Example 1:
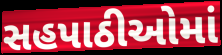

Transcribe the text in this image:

સહપાઠીઓમાં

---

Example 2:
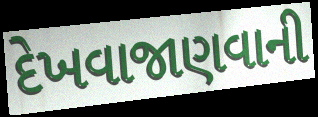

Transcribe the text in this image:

દેખવાજાણવાની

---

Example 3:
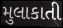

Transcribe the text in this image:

મુલાકાતી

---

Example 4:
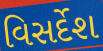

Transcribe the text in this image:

વિસર્દેશ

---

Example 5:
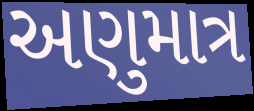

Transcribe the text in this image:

અણુમાત્ર